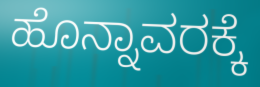
ಹೊನ್ನಾವರಕ್ಕೆ